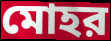
মোহর